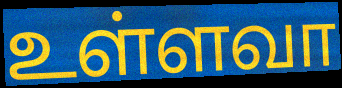
உள்ளவா